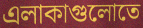
এলাকাগুলোতে